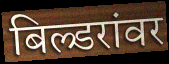
बिल्डरांवर